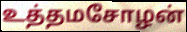
உத்தமசோழன்